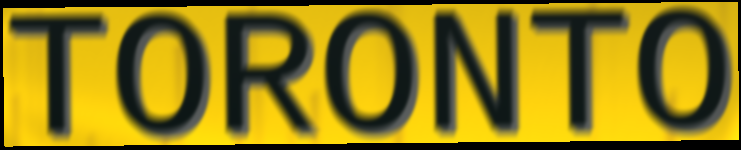
TORONTO